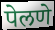
पेलणे